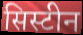
सिस्टीन